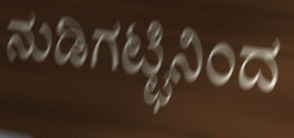
ನುಡಿಗಟ್ಟಿನಿಂದ